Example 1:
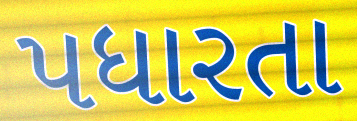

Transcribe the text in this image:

પધારતા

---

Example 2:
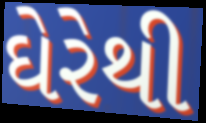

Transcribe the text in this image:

ઘેરેથી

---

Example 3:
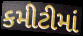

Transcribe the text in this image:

કમીટીમાં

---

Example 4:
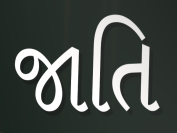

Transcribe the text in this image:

જાતિ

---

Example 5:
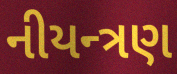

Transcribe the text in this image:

નીયન્ત્રણ